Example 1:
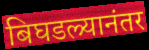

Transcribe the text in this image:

बिघडल्यानंतर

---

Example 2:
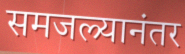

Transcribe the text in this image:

समजल्यानंतर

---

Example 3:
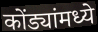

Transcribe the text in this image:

कोंड्यांमध्ये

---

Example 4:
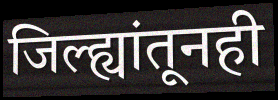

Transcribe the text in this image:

जिल्ह्यांतूनही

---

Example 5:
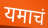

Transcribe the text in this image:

यमाचं